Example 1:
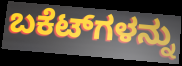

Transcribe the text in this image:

ಬಕೆಟ್‌ಗಳನ್ನು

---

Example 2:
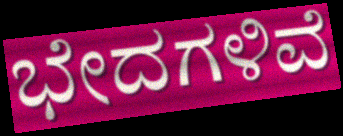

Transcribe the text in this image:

ಭೇದಗಳಿವೆ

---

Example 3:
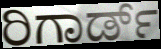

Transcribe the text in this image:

ರಿಗಾರ್ಡ್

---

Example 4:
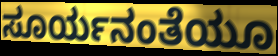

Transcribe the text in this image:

ಸೂರ್ಯನಂತೆಯೂ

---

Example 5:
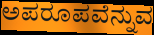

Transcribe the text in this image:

ಅಪರೂಪವೆನ್ನುವ